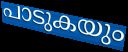
പാടുകയും